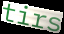
tirs